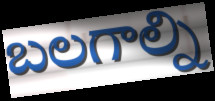
బలగాల్ని